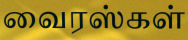
வைரஸ்கள்